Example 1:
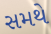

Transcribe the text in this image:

સમથે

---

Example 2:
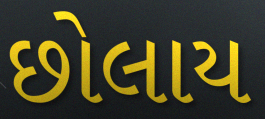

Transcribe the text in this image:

છોલાય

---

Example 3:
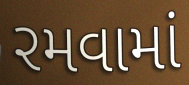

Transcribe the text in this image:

રમવામાં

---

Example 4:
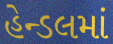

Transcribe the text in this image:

હેન્ડલમાં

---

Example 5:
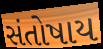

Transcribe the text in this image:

સંતોષાય